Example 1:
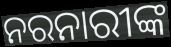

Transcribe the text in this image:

ନରନାରୀଙ୍କ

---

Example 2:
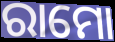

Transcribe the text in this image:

ରାମୋ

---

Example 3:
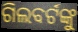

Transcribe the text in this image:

ଗିଲବର୍ଟଙ୍କୁ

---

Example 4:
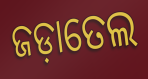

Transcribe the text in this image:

ଜଡ଼ାତେଲ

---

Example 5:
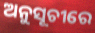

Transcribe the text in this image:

ଅନୁସୂଚୀରେ